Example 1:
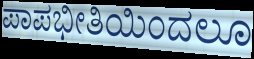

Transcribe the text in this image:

ಪಾಪಭೀತಿಯಿಂದಲೂ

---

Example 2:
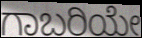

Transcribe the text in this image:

ಗಾಬರಿಯೇ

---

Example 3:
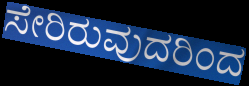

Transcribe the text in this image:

ಸೇರಿರುವುದರಿಂದ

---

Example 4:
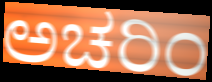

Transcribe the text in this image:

ಅಚರಿಂ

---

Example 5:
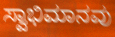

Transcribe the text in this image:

ಸ್ವಾಭಿಮಾನವು